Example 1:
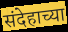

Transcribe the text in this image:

संदेहाच्या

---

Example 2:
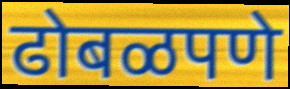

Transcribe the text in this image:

ढोबळपणे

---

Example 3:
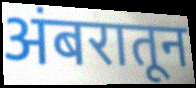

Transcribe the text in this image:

अंबरातून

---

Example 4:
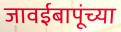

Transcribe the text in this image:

जावईबापूंच्या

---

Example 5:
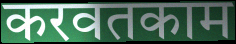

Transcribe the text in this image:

करवतकाम